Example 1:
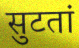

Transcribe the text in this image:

सुटतां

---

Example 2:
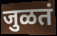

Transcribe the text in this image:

जुळतं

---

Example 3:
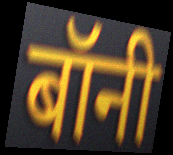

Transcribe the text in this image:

बॉनी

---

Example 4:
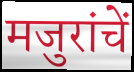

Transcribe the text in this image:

मजुरांचें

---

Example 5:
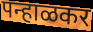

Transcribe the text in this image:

पन्हाळकर